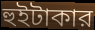
হুইটাকার